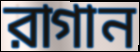
রাগান